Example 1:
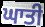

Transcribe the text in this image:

ਘਾਤੀ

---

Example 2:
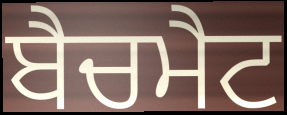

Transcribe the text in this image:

ਬੈਚਮੈਟ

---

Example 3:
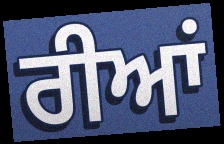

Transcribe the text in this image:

ਰੀਆਂ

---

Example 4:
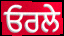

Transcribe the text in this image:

ਓਰਲੇ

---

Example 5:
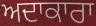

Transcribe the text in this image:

ਅਦਾਕਾਰਾ